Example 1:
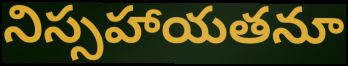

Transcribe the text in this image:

నిస్సహాయతనూ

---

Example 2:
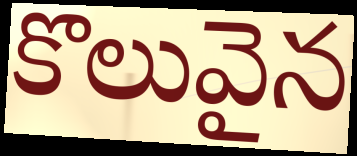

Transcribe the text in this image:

కొలువైన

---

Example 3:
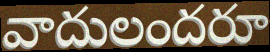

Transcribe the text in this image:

వాదులందరూ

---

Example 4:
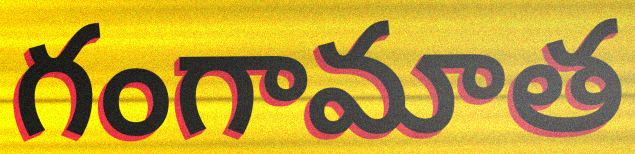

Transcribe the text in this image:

గంగామాత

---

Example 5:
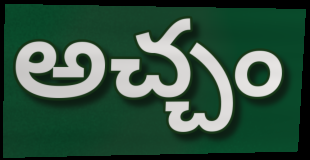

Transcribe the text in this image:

అచ్చం